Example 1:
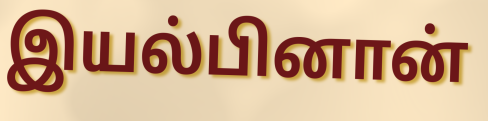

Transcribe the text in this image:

இயல்பினான்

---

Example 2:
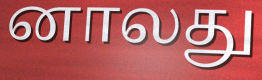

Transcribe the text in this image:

னாலது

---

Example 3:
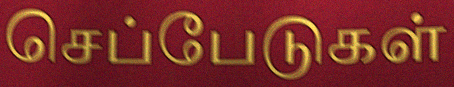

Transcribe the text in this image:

செப்பேடுகள்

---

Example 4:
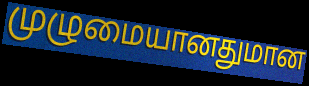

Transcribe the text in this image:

முழுமையானதுமான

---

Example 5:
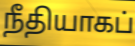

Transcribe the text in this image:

நீதியாகப்